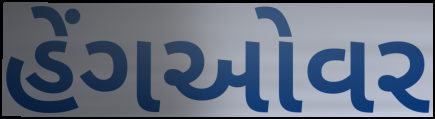
હેંગઓવર